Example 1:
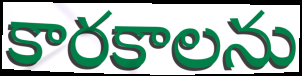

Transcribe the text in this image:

కారకాలను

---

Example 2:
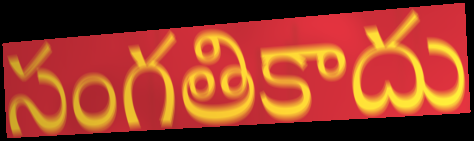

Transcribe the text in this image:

సంగతికాదు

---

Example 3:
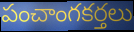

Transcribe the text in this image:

పంచాంగకర్తలు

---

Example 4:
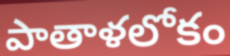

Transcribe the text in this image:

పాతాళలోకం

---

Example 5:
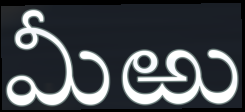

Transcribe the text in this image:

మీఱు